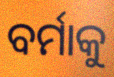
ବର୍ମାକୁ